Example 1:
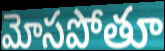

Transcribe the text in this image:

మోసపోతూ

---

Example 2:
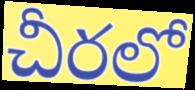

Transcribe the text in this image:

చీరలో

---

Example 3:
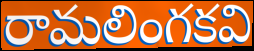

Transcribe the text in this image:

రామలింగకవి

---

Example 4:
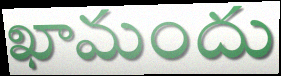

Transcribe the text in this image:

ఖామందు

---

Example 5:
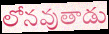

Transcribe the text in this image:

లోనవుతాడు